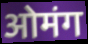
ओमंग